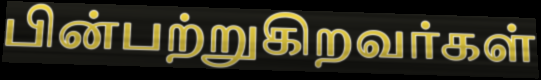
பின்பற்றுகிறவர்கள்